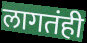
लागतंही